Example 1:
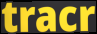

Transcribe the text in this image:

tracr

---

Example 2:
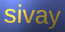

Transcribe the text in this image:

sivay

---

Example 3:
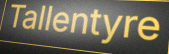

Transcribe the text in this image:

Tallentyre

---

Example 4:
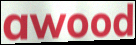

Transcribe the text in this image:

awood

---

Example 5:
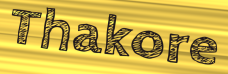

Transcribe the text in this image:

Thakore